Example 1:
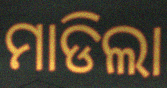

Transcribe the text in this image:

ମାଡିଲା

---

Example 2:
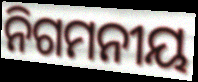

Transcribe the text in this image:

ନିଗମନୀୟ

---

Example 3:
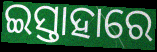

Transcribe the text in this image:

ଇସ୍ତାହାରେ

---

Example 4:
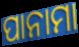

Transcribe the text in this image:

ପାନାମା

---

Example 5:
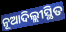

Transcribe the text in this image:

ନୂଆଦିଲ୍ଲୀସ୍ଥିତ